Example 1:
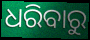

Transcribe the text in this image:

ଧରିବାରୁ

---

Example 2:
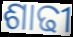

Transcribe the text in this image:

ଶାଢୀ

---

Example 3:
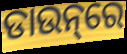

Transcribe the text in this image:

ଡାଉନ୍‌ରେ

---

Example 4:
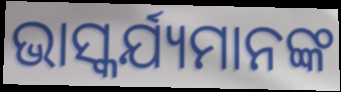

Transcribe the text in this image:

ଭାସ୍କର୍ଯ୍ୟମାନଙ୍କ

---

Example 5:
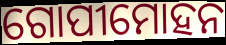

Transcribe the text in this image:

ଗୋପୀମୋହନ